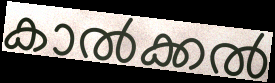
കാൽക്കൽ